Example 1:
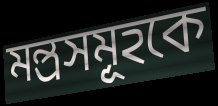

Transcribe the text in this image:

মন্ত্রসমূহকে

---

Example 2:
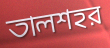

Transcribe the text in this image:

তালশহর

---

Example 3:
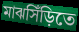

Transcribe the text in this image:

মাঝসিঁড়িতে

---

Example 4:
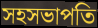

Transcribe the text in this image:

সহসভাপতি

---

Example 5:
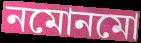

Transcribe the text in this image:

নমোনমো